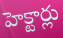
హెక్టార్లు